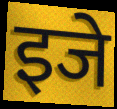
इजे